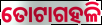
ତୋଟାଗହଳି